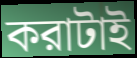
করাটাই